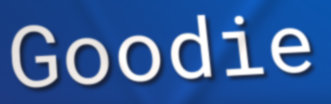
Goodie